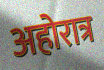
अहोरात्र